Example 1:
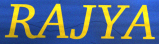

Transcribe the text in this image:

RAJYA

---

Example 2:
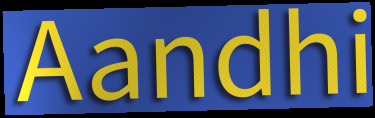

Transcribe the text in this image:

Aandhi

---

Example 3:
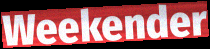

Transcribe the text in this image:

Weekender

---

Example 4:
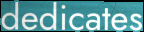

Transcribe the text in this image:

dedicates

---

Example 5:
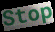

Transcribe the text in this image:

Stop